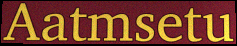
Aatmsetu